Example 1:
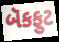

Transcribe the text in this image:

બૅકફુટ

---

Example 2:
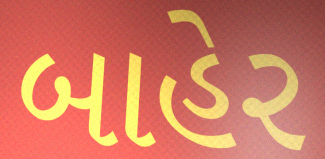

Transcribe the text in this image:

બાહેર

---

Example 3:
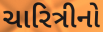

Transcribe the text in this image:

ચારિત્રીનો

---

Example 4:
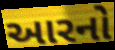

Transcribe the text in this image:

આરનો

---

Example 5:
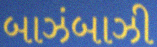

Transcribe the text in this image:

બાઝંબાઝી